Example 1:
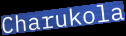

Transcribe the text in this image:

Charukola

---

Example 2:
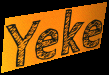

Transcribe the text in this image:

Yeke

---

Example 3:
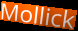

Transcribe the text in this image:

Mollick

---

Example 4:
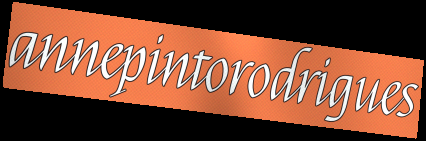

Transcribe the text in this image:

annepintorodrigues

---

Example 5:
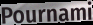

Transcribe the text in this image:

Pournami